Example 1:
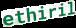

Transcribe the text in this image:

ethiril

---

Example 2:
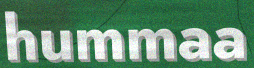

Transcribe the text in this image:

hummaa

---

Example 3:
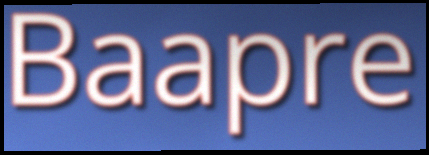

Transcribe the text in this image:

Baapre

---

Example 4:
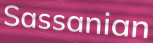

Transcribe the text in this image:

Sassanian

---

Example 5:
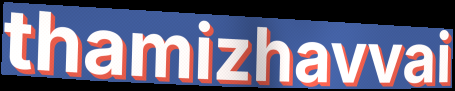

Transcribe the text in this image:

thamizhavvai